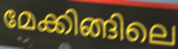
മേക്കിങ്ങിലെ